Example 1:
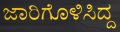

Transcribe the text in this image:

ಜಾರಿಗೊಳಿಸಿದ್ದ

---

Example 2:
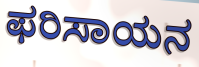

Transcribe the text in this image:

ಫರಿಸಾಯನ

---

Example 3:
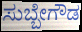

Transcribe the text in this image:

ಸುಬ್ಬೇಗೌಡ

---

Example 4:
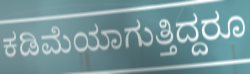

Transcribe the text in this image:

ಕಡಿಮೆಯಾಗುತ್ತಿದ್ದರೂ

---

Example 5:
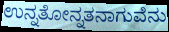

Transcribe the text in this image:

ಉನ್ನತೋನ್ನತನಾಗುವೆನು